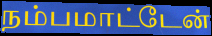
நம்பமாட்டேன்